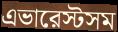
এভারেস্টসম